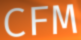
CFM